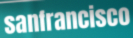
sanfrancisco